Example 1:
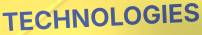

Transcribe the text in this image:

TECHNOLOGIES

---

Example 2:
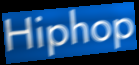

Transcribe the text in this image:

Hiphop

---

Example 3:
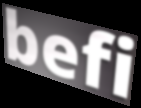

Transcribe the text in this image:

befi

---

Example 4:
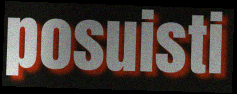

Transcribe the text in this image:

posuisti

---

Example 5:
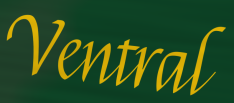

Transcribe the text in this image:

Ventral